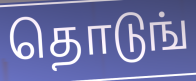
தொடுங்